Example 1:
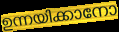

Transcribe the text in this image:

ഉന്നയിക്കാനോ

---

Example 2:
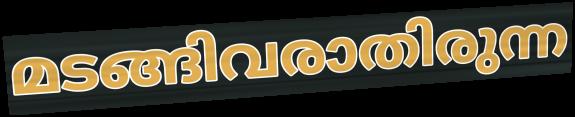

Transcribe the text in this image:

മടങ്ങിവരാതിരുന്ന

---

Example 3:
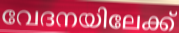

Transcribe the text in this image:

വേദനയിലേക്ക്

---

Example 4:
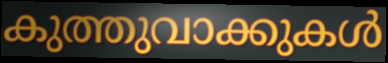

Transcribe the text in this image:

കുത്തുവാക്കുകൾ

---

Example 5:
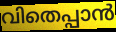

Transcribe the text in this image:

വിതെപ്പാൻ